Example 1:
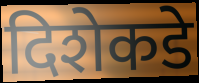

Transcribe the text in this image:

दिशेकडे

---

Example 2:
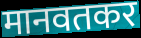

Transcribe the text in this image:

मानवतकर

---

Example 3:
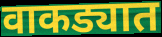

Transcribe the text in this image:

वाकड्यात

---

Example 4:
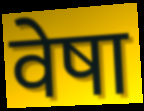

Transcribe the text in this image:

वेषा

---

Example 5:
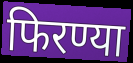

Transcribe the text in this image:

फिरण्या